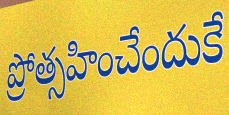
ప్రోత్సహించేందుకే